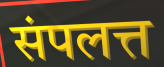
संपलत्त